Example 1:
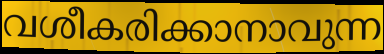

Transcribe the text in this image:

വശീകരിക്കാനാവുന്ന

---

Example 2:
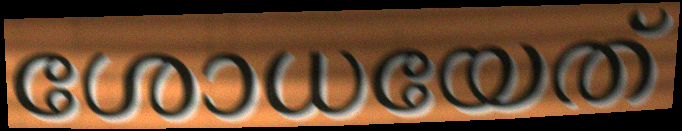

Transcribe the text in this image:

ശോധയേത്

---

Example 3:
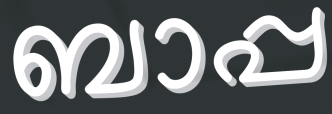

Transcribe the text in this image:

ബാപ്പ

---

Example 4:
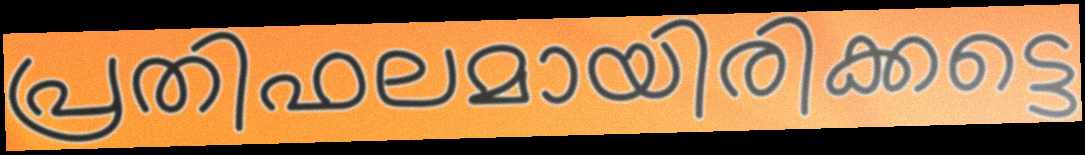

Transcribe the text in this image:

പ്രതിഫലമായിരിക്കട്ടെ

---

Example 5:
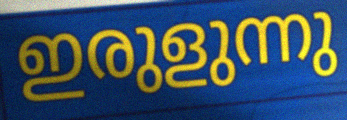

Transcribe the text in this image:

ഇരുളുന്നു